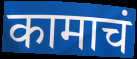
कामाचं